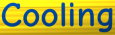
Cooling